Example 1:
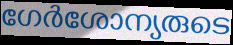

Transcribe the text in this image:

ഗേർശോന്യരുടെ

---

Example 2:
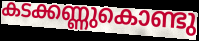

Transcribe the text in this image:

കടക്കണ്ണുകൊണ്ടു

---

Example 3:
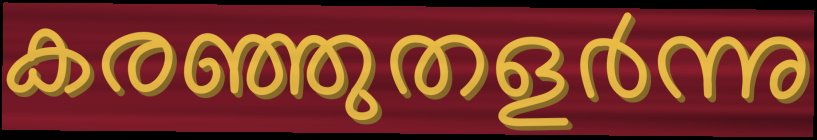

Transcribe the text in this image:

കരഞ്ഞുതളർന്നു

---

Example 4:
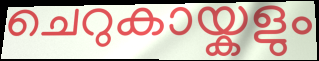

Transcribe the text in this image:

ചെറുകായ്കളും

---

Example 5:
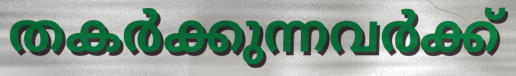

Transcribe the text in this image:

തകർക്കുന്നവർക്ക്